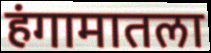
हंगामातला